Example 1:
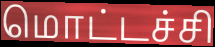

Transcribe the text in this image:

மொட்டச்சி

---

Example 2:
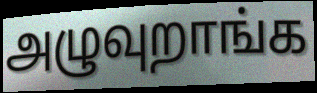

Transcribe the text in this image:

அழுவுறாங்க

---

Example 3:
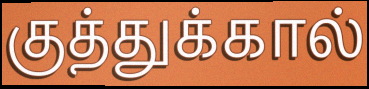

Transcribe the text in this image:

குத்துக்கால்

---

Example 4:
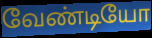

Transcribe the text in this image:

வேண்டியோ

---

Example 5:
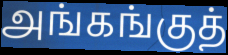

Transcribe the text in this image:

அங்கங்குத்